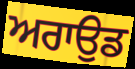
ਅਰਾਉਡ